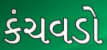
કંચવડો